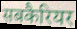
सबकैरियर